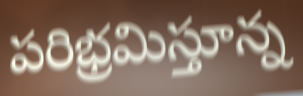
పరిభ్రమిస్తూన్న